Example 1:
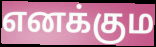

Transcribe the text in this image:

எனக்கும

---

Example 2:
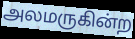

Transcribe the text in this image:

அலமருகின்ற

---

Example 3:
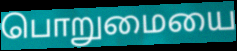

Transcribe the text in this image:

பொறுமையை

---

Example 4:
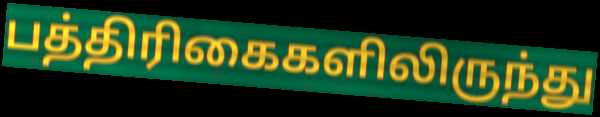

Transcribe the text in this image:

பத்திரிகைகளிலிருந்து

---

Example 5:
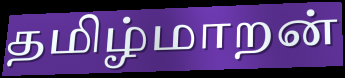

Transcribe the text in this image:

தமிழ்மாறன்